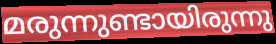
മരുന്നുണ്ടായിരുന്നു